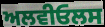
ਅਲਵੀਓਲਸ